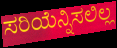
ಸರಿಯೆನ್ನಿಸಲಿಲ್ಲ